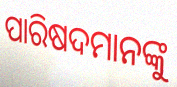
ପାରିଷଦମାନଙ୍କୁ